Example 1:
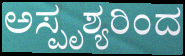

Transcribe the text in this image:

ಅಸ್ಪೃಶ್ಯರಿಂದ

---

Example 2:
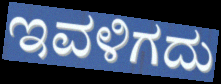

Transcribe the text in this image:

ಇವಳಿಗದು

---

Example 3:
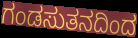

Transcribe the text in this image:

ಗಂಡಸುತನದಿಂದ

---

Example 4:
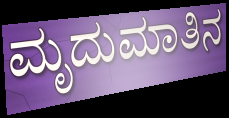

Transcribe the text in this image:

ಮೃದುಮಾತಿನ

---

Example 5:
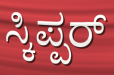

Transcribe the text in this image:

ಸ್ಕಿಪ್ಪರ್